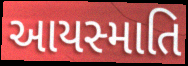
આયસ્માતિ